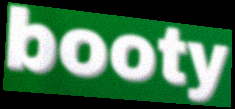
booty